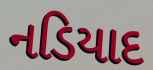
નડિયાદ